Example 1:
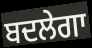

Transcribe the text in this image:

ਬਦਲੇਗਾ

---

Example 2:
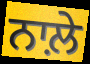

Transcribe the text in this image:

ਨਾਲ਼ੇ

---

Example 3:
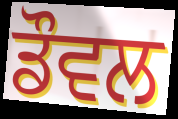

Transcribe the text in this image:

ਡੌਵਲ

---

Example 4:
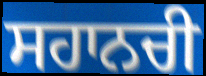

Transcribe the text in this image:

ਸਹਾਨਚੀ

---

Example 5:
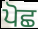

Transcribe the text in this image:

ਪੋਛ